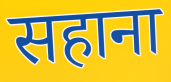
सहाना